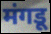
मंगडू